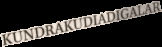
KUNDRAKUDIADIGALAR